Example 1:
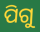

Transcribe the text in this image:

ପିଗୁ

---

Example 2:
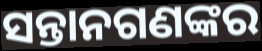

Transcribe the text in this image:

ସନ୍ତାନଗଣଙ୍କର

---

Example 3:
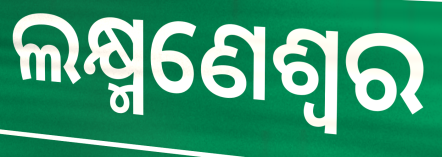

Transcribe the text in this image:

ଲକ୍ଷ୍ମଣେଶ୍ୱର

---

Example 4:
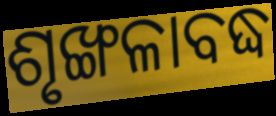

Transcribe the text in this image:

ଶୃଙ୍ଖଳାବଦ୍ଧ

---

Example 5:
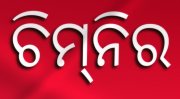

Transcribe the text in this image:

ଚିମ୍‌ନିର